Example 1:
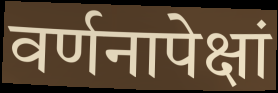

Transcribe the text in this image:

वर्णनापेक्षां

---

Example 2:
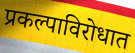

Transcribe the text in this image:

प्रकल्पाविरोधात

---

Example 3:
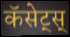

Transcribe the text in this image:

कॅसेट्स्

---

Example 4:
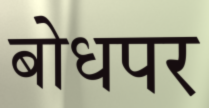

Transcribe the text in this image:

बोधपर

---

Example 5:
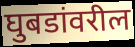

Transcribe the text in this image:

घुबडांवरील